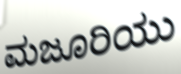
ಮಜೂರಿಯು